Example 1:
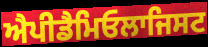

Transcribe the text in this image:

ਐਪੀਡੈਮਿਓਲਾਜਿਸਟ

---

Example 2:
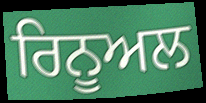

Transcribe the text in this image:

ਰਿਨੂਅਲ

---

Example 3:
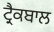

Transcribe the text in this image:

ਟ੍ਰੈਕਬਾਲ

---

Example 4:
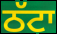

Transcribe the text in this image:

ਠੱਟਾ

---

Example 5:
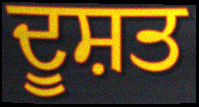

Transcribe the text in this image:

ਦੂਸ਼ਤ